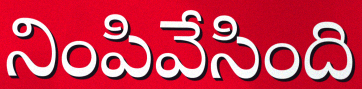
నింపివేసింది